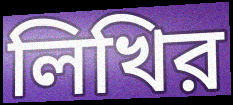
লিখির